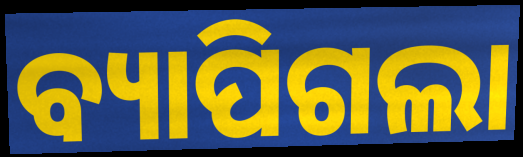
ବ୍ୟାପିଗଲା